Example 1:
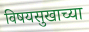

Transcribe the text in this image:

विषयसुखाच्या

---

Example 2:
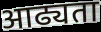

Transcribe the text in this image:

आढ्यता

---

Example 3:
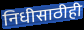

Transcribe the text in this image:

निधीसाठीही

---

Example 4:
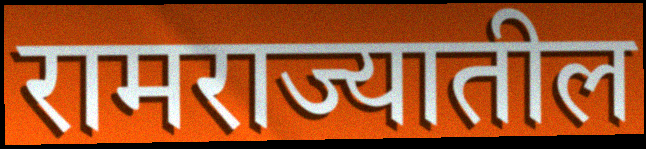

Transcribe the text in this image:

रामराज्यातील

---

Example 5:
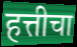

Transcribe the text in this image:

हत्तीचा